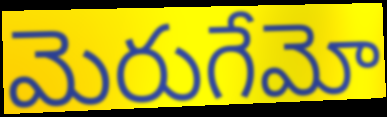
మెరుగేమో